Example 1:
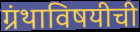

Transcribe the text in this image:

ग्रंथाविषयीची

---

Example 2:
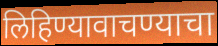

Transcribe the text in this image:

लिहिण्यावाचण्याचा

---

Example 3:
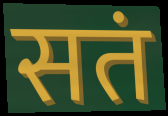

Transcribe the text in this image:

सतं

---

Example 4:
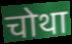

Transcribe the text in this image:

चोथा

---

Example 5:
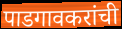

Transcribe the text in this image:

पाडगावकरांची